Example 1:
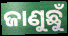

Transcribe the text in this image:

ଜାଣୁଛୁଁ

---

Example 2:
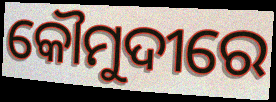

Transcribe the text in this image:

କୌମୁଦୀରେ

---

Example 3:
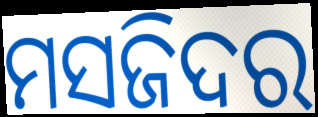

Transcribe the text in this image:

ମସଜିଦର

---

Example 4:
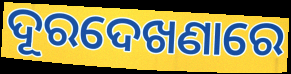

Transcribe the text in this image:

ଦୂରଦେଖଣାରେ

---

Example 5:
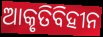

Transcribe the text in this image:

ଆକୃତିବିହୀନ